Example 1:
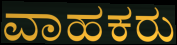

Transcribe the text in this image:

ವಾಹಕರು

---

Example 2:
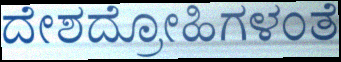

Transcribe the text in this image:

ದೇಶದ್ರೋಹಿಗಳಂತೆ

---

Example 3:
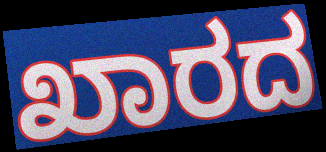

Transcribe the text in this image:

ಖಾರದ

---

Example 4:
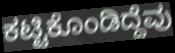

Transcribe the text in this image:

ಕಟ್ಟಿಕೊಂಡಿದ್ದೆವು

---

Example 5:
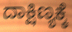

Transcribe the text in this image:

ದಾಕ್ಷಿಣ್ಯಕ್ಕೆ